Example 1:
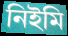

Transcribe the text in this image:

নিইমি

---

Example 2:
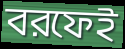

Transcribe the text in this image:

বরফেই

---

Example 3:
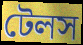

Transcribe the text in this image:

টেলস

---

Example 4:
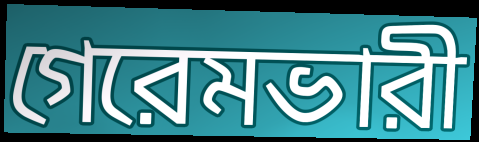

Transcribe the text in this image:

গেরেমভারী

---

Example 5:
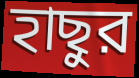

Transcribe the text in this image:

হাছুর